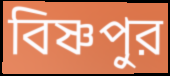
বিষ্ণপুর